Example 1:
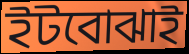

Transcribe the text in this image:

ইটবোঝাই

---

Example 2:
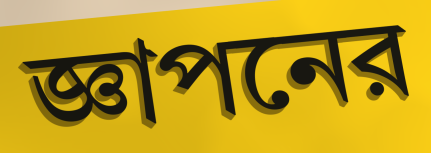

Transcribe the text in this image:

জ্ঞাপনের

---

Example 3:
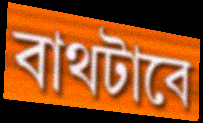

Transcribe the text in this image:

বাথটাবে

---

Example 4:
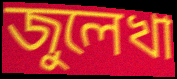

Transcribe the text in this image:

জুলেখা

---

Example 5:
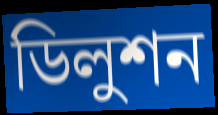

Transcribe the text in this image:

ডিলুশন